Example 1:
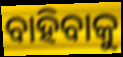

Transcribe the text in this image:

ବାହିବାକୁ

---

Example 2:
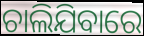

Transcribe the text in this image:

ଚାଲିଯିବାରେ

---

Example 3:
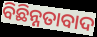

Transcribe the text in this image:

ବିଛିନ୍ନତାବାଦ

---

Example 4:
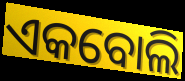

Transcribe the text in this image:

ଏକବୋଲି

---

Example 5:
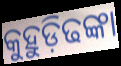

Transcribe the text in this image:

କୁହୁଡ଼ିଢଙ୍କା